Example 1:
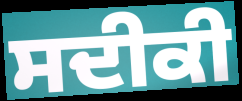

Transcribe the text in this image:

ਸਦੀਕੀ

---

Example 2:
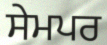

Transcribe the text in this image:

ਸੇਮਪਰ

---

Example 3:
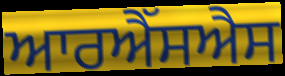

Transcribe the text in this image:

ਆਰਐੱਸਐਸ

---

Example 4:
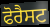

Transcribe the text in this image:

ਫੋਰੈਸਟ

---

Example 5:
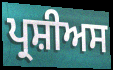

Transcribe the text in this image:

ਪ੍ਰਸ਼ੀਅਸ